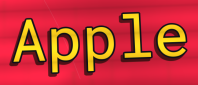
Apple